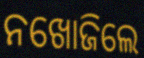
ନଖୋଜିଲେ